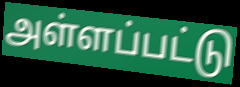
அள்ளப்பட்டு